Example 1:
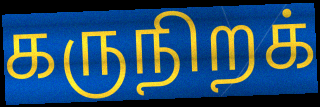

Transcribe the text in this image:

கருநிறக்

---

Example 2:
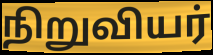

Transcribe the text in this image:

நிறுவியர்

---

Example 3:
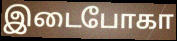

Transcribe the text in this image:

இடைபோகா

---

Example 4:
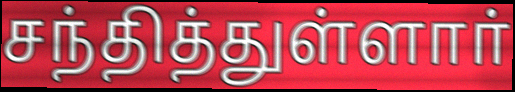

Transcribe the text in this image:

சந்தித்துள்ளார்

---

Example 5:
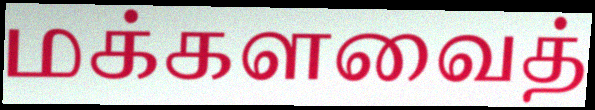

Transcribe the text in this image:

மக்களவைத்